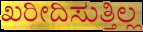
ಖರೀದಿಸುತ್ತಿಲ್ಲ